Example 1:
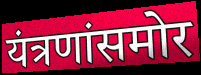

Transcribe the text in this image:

यंत्रणांसमोर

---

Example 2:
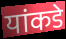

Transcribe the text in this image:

यांकडे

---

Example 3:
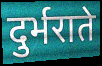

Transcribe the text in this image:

दुर्भराते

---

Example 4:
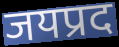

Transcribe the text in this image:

जयप्रद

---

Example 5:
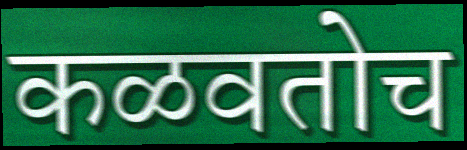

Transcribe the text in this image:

कळवतोच